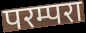
परम्परा